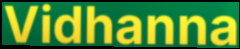
Vidhanna